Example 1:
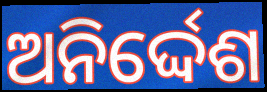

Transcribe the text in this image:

ଅନିର୍ଦ୍ଦେଶ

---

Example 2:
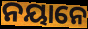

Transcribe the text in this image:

ନୟାନେ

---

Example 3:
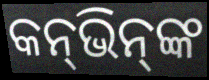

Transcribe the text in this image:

କନ୍‌ଭିନ୍‌ଙ୍କ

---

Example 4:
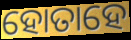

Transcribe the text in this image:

ହୋତାହେ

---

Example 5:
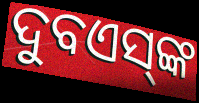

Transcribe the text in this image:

ଦୁବଏସ୍‌ଙ୍କ